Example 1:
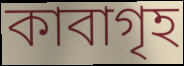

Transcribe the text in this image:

কাবাগৃহ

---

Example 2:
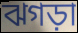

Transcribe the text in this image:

ঝগড়া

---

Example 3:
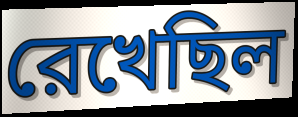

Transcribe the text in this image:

রেখেছিল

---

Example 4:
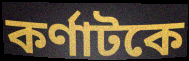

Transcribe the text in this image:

কর্ণাটকে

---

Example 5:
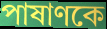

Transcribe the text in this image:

পাষাণকে